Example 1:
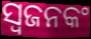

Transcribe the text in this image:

ସ୍ଵଜନକଂ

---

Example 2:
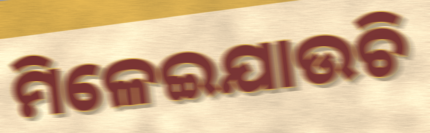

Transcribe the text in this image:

ମିଳେଇଯାଉଚି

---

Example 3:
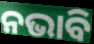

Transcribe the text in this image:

ନଭାବି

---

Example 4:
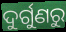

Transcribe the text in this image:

ଦୁର୍ଗୁଣରୁ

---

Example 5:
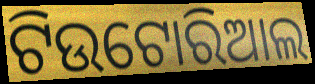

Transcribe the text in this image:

ଟିଉଟୋରିଆଲ